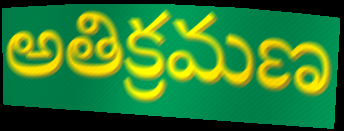
అతిక్రమణ